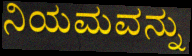
ನಿಯಮವನ್ನು